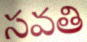
సవతి